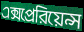
এক্সপ্রেরিয়েন্স